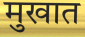
मुखात